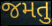
જમતુ